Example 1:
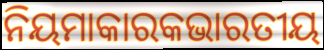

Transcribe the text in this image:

ନିୟମାକାରକଭାରତୀୟ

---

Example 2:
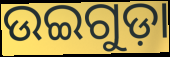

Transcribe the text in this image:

ଉଇଗୁଡ଼ା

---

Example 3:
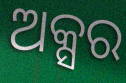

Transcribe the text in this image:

ଅକ୍ସର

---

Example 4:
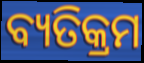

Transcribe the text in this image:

ବ୍ଯତିକ୍ରମ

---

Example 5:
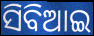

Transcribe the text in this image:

ସିବିଆଇ